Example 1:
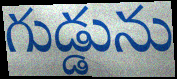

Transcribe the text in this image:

గుడ్డును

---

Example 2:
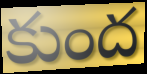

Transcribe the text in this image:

కుంద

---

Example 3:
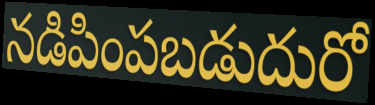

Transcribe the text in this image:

నడిపింపబడుదురో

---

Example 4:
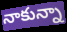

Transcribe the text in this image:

నాకున్నా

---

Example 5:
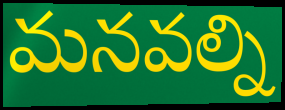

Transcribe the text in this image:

మనవల్ని